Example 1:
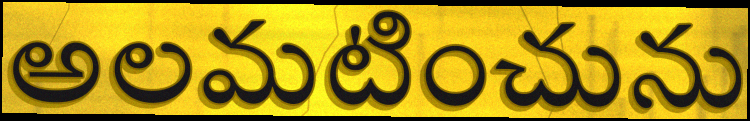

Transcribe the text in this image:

అలమటించును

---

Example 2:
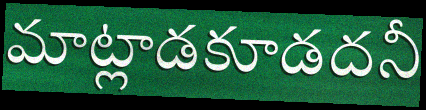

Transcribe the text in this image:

మాట్లాడకూడదనీ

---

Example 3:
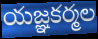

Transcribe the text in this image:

యజ్ఞకర్మల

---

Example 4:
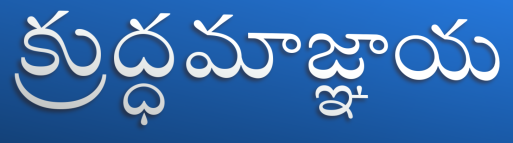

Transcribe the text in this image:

క్రుద్ధమాజ్ఞాయ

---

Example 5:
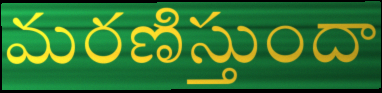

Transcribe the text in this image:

మరణిస్తుందా